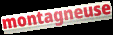
montagneuse